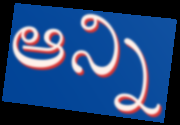
ఆన్ని